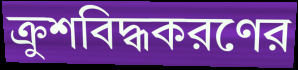
ক্রুশবিদ্ধকরণের